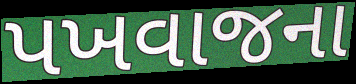
પખવાજના